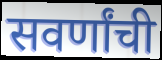
सवर्णांची